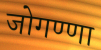
जोगण्णा